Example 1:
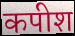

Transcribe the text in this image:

कपीश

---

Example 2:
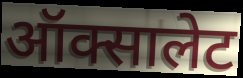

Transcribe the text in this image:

ऑक्सालेट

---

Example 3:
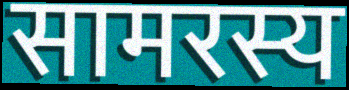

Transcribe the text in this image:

सामरस्य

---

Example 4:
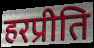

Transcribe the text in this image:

हरप्रीति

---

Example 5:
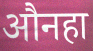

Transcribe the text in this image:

औनहा